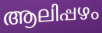
ആലിപ്പഴം